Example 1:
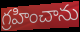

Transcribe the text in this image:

గ్రహించాను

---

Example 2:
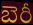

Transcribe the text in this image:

బెరీ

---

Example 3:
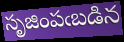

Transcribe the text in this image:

సృజింపఁబడిన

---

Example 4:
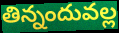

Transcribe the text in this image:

తిన్నందువల్ల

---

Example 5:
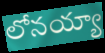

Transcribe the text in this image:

లోనయ్యా